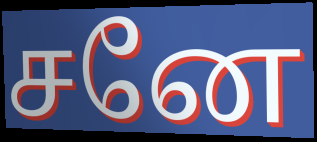
சனே